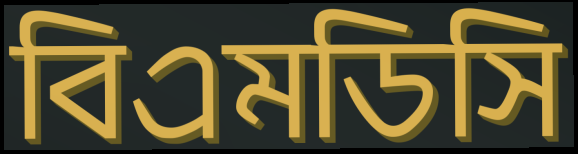
বিএমডিসি